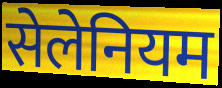
सेलेनियम